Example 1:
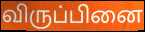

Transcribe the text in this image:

விருப்பினை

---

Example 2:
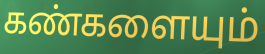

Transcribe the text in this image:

கண்களையும்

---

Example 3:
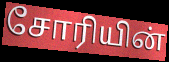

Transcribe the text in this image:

சோரியின்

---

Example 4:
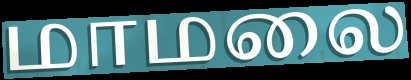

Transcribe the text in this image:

மாமலை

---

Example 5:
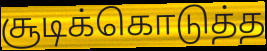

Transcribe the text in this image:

சூடிக்கொடுத்த